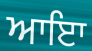
ਆਇਾ